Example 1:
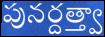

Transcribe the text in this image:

పునర్దత్త్వా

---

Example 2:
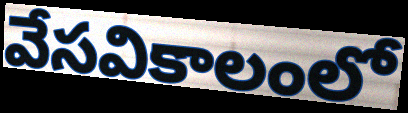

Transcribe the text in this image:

వేసవికాలంలో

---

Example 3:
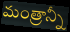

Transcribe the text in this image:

మంత్రాన్నీ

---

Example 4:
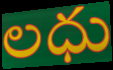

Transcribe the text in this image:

లధు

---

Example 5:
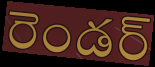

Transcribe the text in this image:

రెండర్